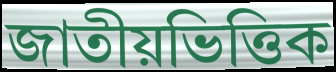
জাতীয়ভিত্তিক